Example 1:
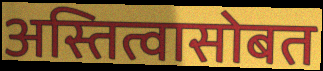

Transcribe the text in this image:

अस्तित्वासोबत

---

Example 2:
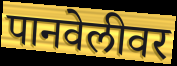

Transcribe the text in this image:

पानवेलीवर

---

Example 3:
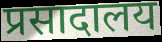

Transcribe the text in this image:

प्रसादालय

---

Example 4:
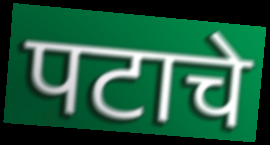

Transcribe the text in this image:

पटाचे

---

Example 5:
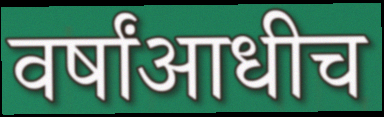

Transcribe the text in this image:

वर्षांआधीच